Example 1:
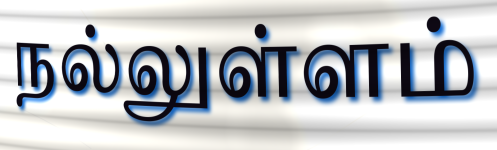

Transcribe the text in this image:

நல்லுள்ளம்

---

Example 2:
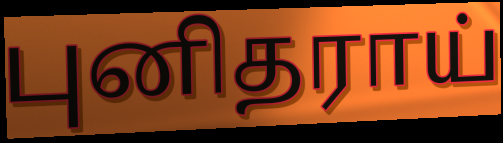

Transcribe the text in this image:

புனிதராய்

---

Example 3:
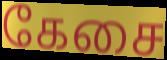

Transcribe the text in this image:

கேசை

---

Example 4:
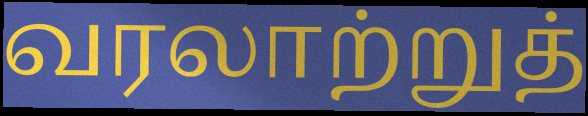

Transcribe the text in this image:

வரலாற்றுத்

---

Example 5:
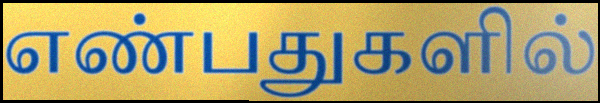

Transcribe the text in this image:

எண்பதுகளில்